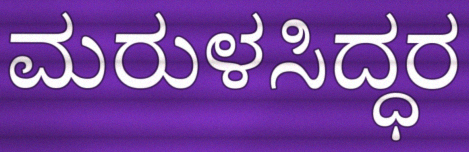
ಮರುಳಸಿದ್ಧರ